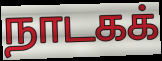
நாடகக்